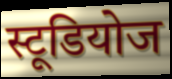
स्टूडियोज